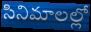
సినిమాలల్లో